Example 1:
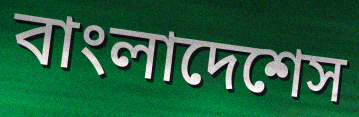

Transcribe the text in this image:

বাংলাদেশেস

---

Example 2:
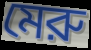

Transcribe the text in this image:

মেরু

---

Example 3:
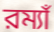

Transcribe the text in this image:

রম্যাঁ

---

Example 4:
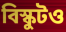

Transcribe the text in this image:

বিস্কুটও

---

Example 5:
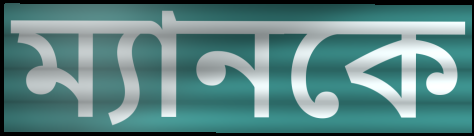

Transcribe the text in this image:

ম্যানকে